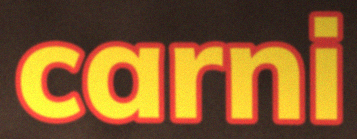
carni